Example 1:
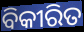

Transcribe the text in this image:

ବିକୀରିତ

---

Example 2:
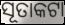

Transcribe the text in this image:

ସୂତାକଟା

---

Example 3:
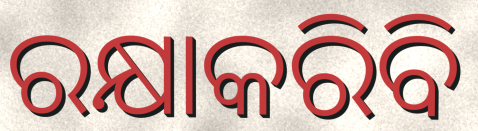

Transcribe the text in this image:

ରକ୍ଷାକରିବି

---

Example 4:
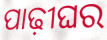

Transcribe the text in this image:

ପାଢ଼ୀଘର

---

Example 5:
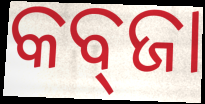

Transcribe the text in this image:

କବ୍‌ଜା